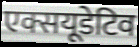
एक्सयूडेटिव